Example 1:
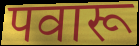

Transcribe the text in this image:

पवारू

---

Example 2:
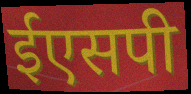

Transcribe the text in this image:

ईएसपी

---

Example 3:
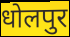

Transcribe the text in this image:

धोलपुर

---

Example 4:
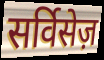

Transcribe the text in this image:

सर्विसेज़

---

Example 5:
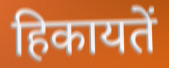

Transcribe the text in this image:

हिकायतें